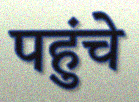
पहुंचे